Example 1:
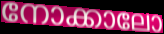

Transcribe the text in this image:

നോക്കാലോ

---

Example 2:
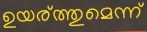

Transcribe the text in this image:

ഉയര്ത്തുമെന്ന്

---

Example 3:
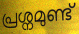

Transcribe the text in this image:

പ്രശ്നമുണ്ട്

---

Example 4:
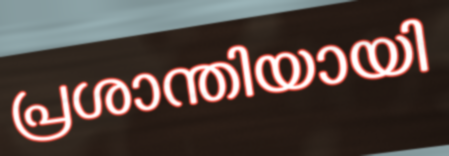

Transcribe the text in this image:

പ്രശാന്തിയായി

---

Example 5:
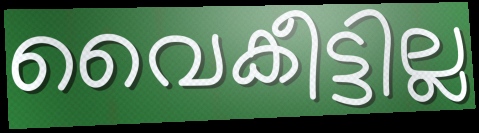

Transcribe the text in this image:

വൈകീട്ടില്ല